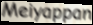
Meiyappan